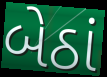
બેઠાં